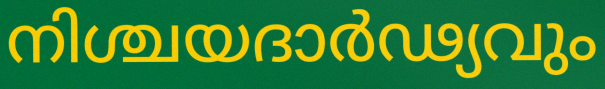
നിശ്ചയദാർഢ്യവും